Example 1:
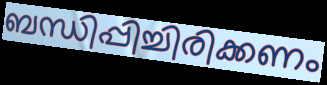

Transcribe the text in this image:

ബന്ധിപ്പിച്ചിരിക്കണം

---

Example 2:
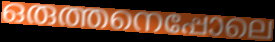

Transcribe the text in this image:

ഒരുത്തനെപ്പോലെ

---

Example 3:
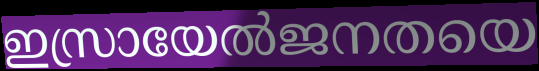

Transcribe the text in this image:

ഇസ്രായേൽജനതയെ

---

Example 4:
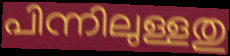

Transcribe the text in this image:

പിന്നിലുള്ളതു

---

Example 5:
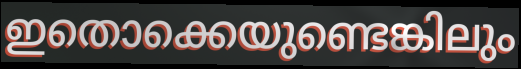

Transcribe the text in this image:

ഇതൊക്കെയുണ്ടെങ്കിലും